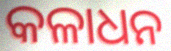
କଳାଧନ